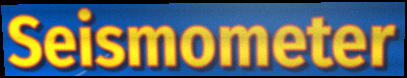
Seismometer